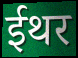
ईथर